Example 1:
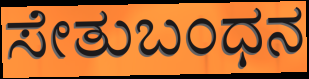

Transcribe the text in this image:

ಸೇತುಬಂಧನ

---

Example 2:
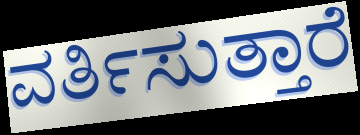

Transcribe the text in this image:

ವರ್ತಿಸುತ್ತಾರೆ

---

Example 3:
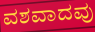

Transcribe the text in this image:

ವಶವಾದವು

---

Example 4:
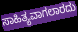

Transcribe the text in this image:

ಸಾಹಿತ್ಯವಾಗಲಾರದು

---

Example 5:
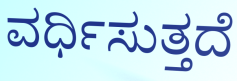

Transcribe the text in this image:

ವರ್ಧಿಸುತ್ತದೆ